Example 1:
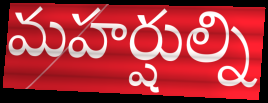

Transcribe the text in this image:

మహర్షుల్ని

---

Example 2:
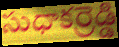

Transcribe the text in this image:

సుధాకర్రెడ్డి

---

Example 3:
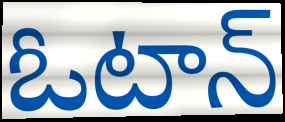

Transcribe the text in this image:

ఓటాన్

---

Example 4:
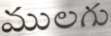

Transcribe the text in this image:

ములగు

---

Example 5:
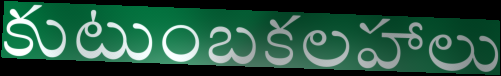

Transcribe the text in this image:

కుటుంబకలహాలు